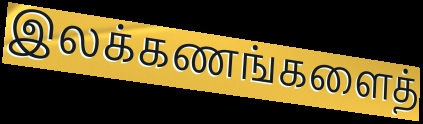
இலக்கணங்களைத்